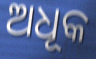
ଅଧୂକ